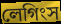
লেগিংস